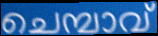
ചെമ്പാവ്